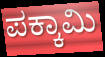
ಪಕ್ಕಾಮಿ